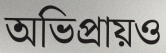
অভিপ্রায়ও